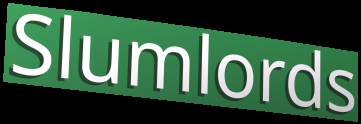
Slumlords